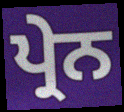
ਪ੍ਰੇਨ